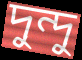
দুন্দু